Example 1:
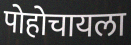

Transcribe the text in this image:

पोहोचायला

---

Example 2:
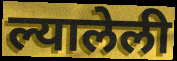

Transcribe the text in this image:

ल्यालेली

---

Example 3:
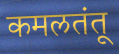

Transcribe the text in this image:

कमलतंतू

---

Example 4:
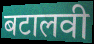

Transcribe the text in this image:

बटालवी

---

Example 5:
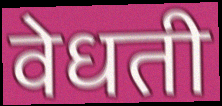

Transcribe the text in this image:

वेधती